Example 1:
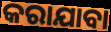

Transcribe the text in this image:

କରାଯାବା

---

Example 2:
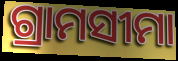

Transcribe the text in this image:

ଗ୍ରାମସୀମା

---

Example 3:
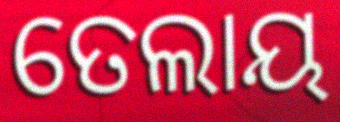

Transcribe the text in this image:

ତେଲାୟ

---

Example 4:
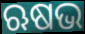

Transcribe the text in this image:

ଋଷଭ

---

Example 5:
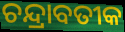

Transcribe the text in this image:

ଚନ୍ଦ୍ରାବତୀକ